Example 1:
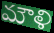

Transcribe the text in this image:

మౌళి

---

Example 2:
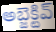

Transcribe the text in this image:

అబ్జెక్టివ్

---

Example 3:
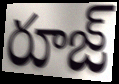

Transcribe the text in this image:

రూజ్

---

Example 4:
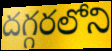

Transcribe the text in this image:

దగ్గరలోని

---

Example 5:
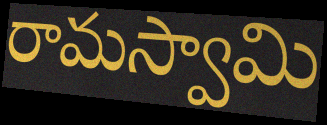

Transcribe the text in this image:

రామస్వామి